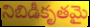
నిబిడీకృతమై